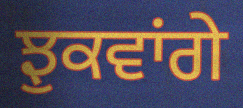
ਝੁਕਵਾਂਗੇ